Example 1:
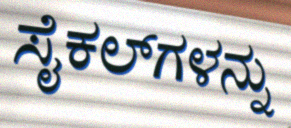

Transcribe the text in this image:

ಸೈಕಲ್‌ಗಳನ್ನು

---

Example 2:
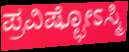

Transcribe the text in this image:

ಪ್ರವಿಷ್ಟೋಽಸ್ಮಿ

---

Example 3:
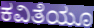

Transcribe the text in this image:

ಕವಿತೆಯೂ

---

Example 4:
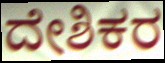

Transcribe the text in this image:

ದೇಶಿಕರ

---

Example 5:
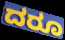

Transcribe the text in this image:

ದರೂ